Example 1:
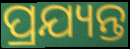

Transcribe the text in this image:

ପ୍ରଯ୍ୟନ୍ତ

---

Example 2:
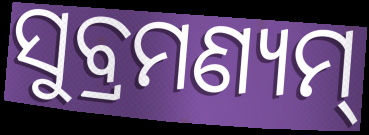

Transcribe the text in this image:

ସୁବ୍ରମଣ୍ୟମ୍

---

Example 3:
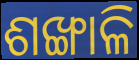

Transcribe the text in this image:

ଶଙ୍ଖାଳି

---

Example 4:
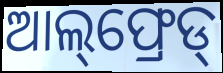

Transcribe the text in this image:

ଆଲ୍‌ଫ୍ରେଡ୍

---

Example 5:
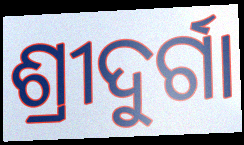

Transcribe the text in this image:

ଶ୍ରୀଦୁର୍ଗା